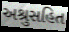
અશ્રુસહિત